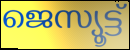
ജെസ്യൂട്ട്